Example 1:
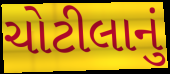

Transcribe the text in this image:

ચોટીલાનું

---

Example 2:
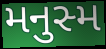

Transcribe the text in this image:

મનુસ્મ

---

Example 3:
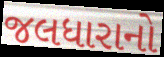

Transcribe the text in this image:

જલધારાનો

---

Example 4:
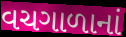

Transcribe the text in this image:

વચગાળાનાં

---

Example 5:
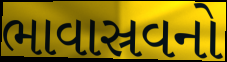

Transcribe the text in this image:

ભાવાસ્રવનો